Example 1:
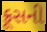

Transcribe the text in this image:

ક્રૂસની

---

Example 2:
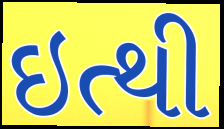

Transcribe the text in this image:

ઇત્થી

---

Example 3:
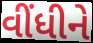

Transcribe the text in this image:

વીંધીને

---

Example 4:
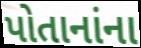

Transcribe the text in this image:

પોતાનાંના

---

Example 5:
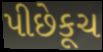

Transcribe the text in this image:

પીછેકૂચ